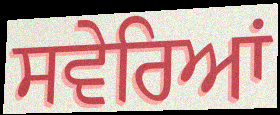
ਸਵੇਰਿਆਂ